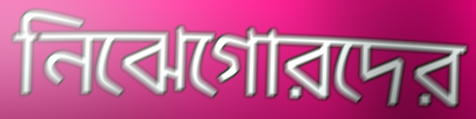
নিঝেগোরদের